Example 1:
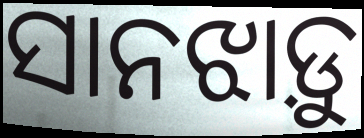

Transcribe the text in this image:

ସାନଝାଡ଼ୁ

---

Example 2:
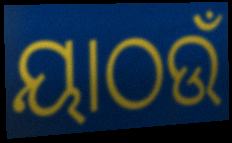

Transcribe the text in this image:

ୟାଠଉଁ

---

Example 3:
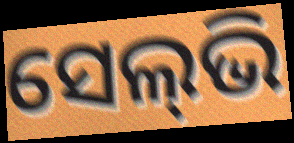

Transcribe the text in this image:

ସେଲ୍‌ଭି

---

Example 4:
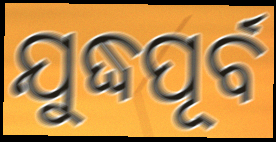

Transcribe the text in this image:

ଯୁଦ୍ଧପୂର୍ବ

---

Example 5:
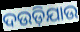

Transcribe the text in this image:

ଦଉଡ଼ିଯାଉ